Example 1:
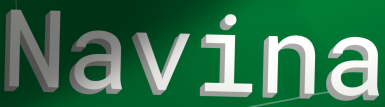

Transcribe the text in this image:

Navina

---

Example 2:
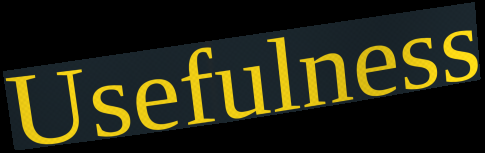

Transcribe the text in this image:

Usefulness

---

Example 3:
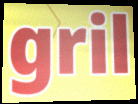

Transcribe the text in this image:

gril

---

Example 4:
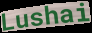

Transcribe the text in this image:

Lushai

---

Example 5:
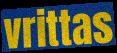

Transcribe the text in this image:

vrittas